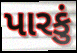
પારકું